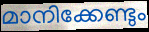
മാനിക്കേണ്ടും